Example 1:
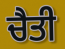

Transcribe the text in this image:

ਚੈਤੀ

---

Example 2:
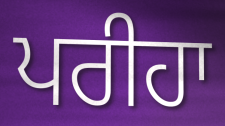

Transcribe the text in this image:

ਪਰੀਹਾ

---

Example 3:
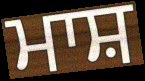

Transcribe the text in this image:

ਮਾਸ਼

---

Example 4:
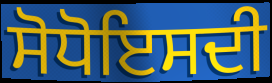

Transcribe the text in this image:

ਸੋਧੋਇਸਦੀ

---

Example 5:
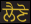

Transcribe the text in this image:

ਲੈਣੋ